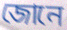
জোনে